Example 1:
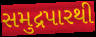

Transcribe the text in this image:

સમુદ્રપારથી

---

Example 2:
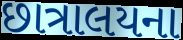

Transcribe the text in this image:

છાત્રાલયના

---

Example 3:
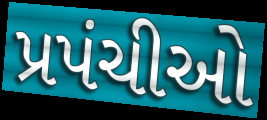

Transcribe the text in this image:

પ્રપંચીઓ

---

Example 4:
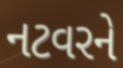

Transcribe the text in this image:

નટવરને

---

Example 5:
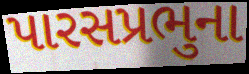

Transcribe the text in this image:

પારસપ્રભુના